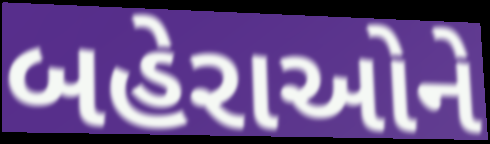
બહેરાઓને